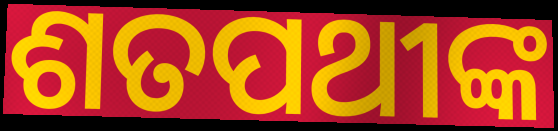
ଶତପଥୀଙ୍କ